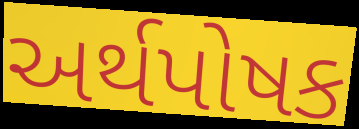
અર્થપોષક